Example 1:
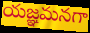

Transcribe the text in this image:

యజ్ఞమనగా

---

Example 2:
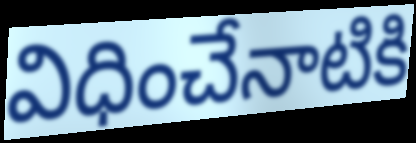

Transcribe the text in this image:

విధించేనాటికి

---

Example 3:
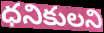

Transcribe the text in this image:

ధనికులని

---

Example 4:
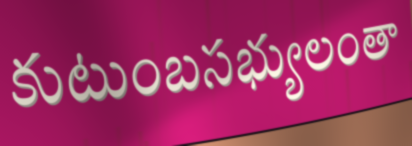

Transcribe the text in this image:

కుటుంబసభ్యులంతా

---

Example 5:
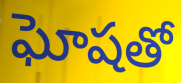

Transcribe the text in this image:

ఘోషతో